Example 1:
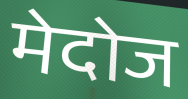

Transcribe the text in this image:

मेदोज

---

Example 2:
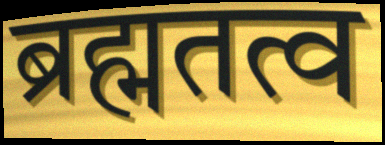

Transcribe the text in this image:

ब्रह्मतत्व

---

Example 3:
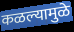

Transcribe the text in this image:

कळल्यामुळे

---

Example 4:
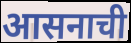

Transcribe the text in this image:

आसनाची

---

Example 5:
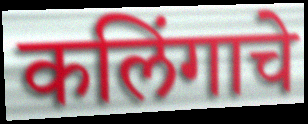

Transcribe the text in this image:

कलिंगाचे